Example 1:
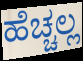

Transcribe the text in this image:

ಹೆಚ್ಚಲ್ಲ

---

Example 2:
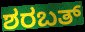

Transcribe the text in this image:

ಶರಬತ್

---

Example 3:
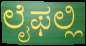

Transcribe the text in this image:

ಲೈಫಲ್ಲಿ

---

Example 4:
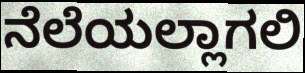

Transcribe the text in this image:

ನೆಲೆಯಲ್ಲಾಗಲಿ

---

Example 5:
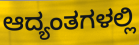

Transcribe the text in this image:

ಆದ್ಯಂತಗಳಲ್ಲಿ